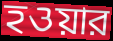
হওয়ার